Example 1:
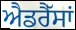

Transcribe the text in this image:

ਐਡਰੈੱਸਾਂ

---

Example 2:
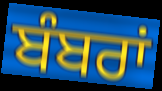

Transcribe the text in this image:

ਬੰਬਰਾਂ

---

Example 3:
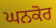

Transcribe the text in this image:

ਘਨਕੋਰ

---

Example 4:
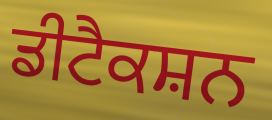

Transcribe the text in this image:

ਡੀਟੈਕਸ਼ਨ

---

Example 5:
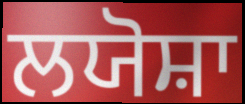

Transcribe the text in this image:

ਲਯੋਸ਼ਾ